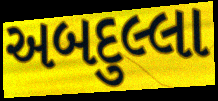
અબદુલ્લા